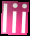
lii